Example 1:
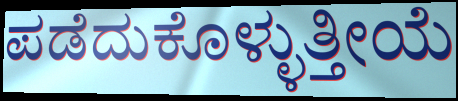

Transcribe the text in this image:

ಪಡೆದುಕೊಳ್ಳುತ್ತೀಯೆ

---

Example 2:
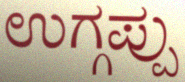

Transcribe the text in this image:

ಉಗ್ಗಪ್ಪು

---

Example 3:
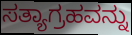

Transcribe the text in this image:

ಸತ್ಯಾಗ್ರಹವನ್ನು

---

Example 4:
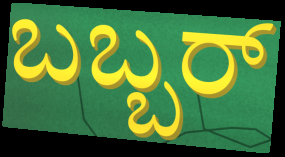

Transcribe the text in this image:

ಬಬ್ಬರ್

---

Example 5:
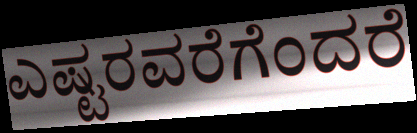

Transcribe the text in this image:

ಎಷ್ಟರವರೆಗೆಂದರೆ